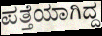
ಪತ್ತೆಯಾಗಿದ್ದ